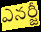
ఎనర్జీ